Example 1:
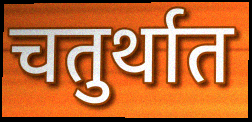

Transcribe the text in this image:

चतुर्थात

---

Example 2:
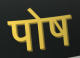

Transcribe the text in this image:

पोष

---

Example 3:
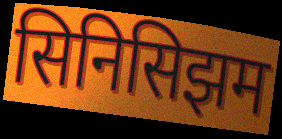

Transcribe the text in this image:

सिनिसिझम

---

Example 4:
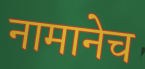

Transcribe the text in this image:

नामानेच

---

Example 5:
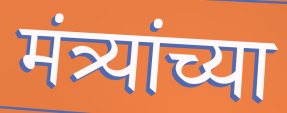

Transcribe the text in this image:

मंत्र्यांच्या